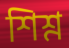
শিশ্ন